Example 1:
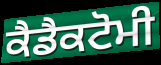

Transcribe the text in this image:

ਕੈਡੈਕਟੋਮੀ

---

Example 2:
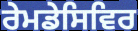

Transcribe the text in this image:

ਰੇਮਡੇਸਿਵਿਰ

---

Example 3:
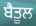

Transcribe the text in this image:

ਬੈਤੂਲ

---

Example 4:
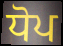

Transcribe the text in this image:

ਧੋਪ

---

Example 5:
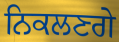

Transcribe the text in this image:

ਨਿਕਲਣਗੇ